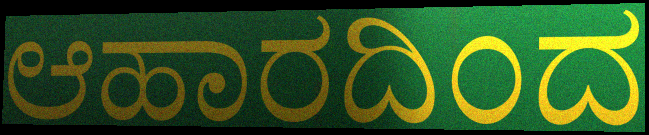
ಆಹಾರದಿಂದ